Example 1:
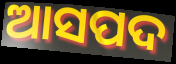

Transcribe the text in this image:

ଆସପଦ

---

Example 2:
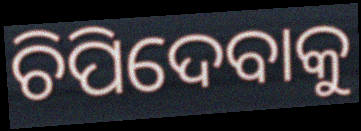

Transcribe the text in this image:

ଚିପିଦେବାକୁ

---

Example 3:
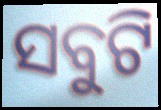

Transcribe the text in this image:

ସବୁଟି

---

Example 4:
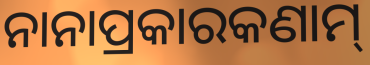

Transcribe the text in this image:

ନାନାପ୍ରକାରକଣାମ୍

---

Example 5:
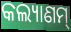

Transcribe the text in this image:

କଲ୍ୟାଣମ୍